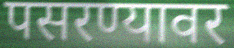
पसरण्यावर